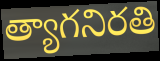
త్యాగనిరతి